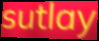
sutlay